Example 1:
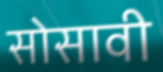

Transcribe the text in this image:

सोसावी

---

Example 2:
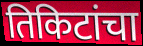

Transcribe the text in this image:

तिकिटांचा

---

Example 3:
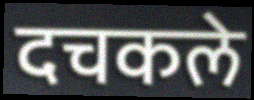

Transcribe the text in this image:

दचकले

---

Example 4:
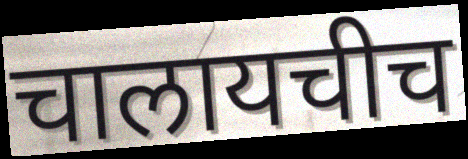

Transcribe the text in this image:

चालायचीच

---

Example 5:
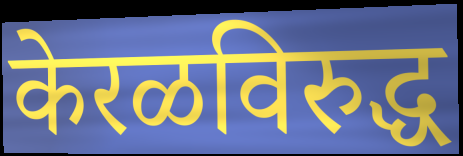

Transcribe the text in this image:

केरळविरुद्ध